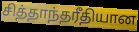
சித்தாந்தரீதியான